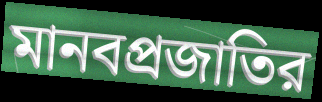
মানবপ্রজাতির